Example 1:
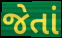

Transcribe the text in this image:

જેતાં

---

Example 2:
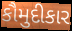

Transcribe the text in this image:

કૌમુદીકાર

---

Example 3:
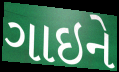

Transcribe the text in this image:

ગાઇને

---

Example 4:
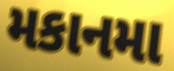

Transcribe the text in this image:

મકાનમા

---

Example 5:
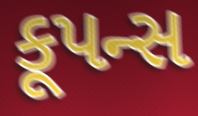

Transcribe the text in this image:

કૂપન્સ